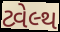
ટ્વેલ્થ